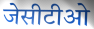
जेसीटीओ